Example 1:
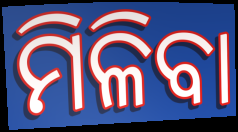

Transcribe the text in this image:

ମିଳିବା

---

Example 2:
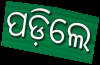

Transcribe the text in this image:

ପଡ଼ିଲେ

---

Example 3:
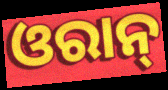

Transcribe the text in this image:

ଓରାନ୍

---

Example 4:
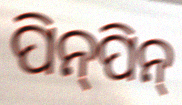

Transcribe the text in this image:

ପିନ୍‍ପିନ୍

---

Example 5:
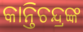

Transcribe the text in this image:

କାନ୍ତିଚନ୍ଦ୍ରଙ୍କ